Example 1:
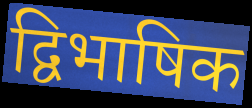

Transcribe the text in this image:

द्विभाषिक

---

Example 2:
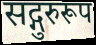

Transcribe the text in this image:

सद्गुरुरूप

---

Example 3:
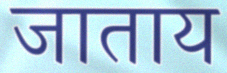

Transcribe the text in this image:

जाताय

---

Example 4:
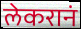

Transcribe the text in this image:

लेकरानं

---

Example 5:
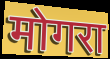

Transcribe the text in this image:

मोगरा